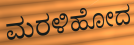
ಮರಳಿಹೋದ